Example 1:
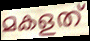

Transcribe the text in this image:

മകളത്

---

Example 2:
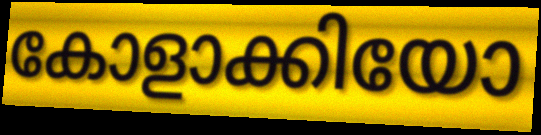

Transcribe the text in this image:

കോളാക്കിയോ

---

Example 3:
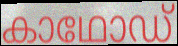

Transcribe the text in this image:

കാഥോഡ്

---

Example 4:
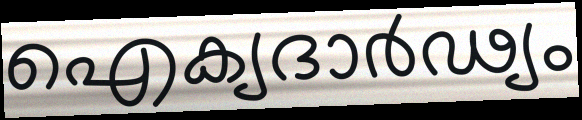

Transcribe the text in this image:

ഐക്യദാർഢ്യം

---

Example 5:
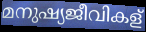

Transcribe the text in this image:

മനുഷ്യജീവികള്